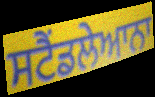
ਸਟੈਂਡਲੇਆਨਾ